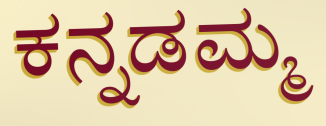
ಕನ್ನಡಮ್ಮ